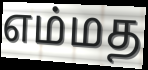
எம்மத